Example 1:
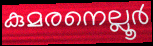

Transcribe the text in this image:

കുമരനെല്ലൂർ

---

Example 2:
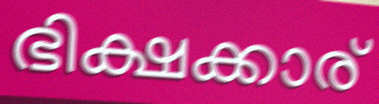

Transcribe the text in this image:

ഭിക്ഷക്കാര്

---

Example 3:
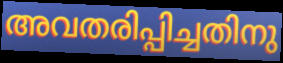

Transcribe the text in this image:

അവതരിപ്പിച്ചതിനു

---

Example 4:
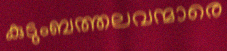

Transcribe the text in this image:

കുടുംബത്തലവന്മാരെ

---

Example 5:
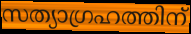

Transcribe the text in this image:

സത്യാഗ്രഹത്തിന്